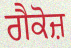
ਗੈਕੋਜ਼